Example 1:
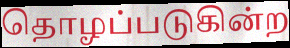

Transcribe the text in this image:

தொழப்படுகின்ற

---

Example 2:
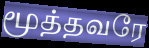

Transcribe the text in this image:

மூத்தவரே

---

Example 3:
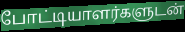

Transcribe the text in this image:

போட்டியாளர்களுடன்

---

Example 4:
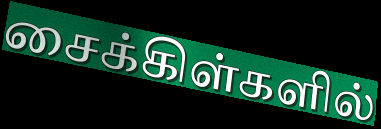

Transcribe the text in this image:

சைக்கிள்களில்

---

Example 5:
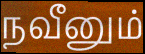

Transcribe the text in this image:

நவீனும்